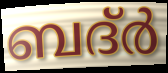
ബദ്ർ